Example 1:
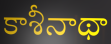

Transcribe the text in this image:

కాశీనాథా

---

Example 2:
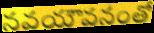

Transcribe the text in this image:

నవయౌవనంతో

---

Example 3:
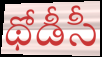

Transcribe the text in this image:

థోడీసీ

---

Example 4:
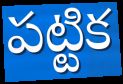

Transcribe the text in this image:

పట్టిక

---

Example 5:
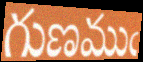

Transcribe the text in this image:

గుణముఁ